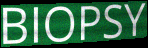
BIOPSY